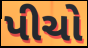
પીચો